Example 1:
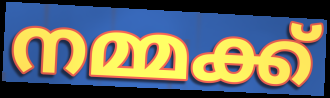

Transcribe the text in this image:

നമ്മക്ക്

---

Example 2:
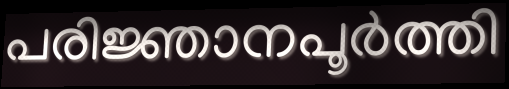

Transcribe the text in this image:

പരിജ്ഞാനപൂർത്തി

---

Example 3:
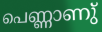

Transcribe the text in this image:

പെണ്ണാണു്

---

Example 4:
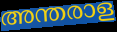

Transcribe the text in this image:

അന്തരാള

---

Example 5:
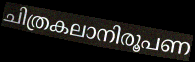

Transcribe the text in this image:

ചിത്രകലാനിരൂപണ